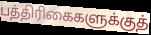
பத்திரிகைகளுக்குத்